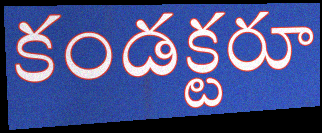
కండక్టరూ